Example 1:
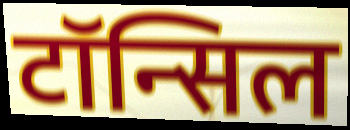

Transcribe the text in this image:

टॉन्सिल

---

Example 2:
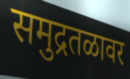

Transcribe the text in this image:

समुद्रतळावर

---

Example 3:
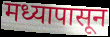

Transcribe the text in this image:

मध्यापासून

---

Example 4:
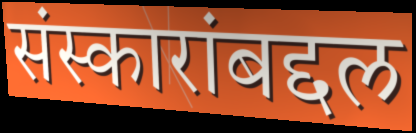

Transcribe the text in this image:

संस्कारांबद्दल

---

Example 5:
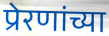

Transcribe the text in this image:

प्रेरणांच्या